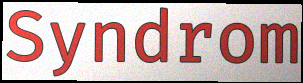
Syndrom